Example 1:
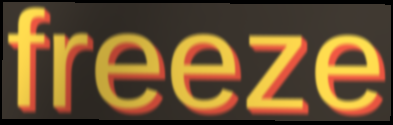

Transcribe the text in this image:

freeze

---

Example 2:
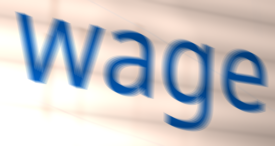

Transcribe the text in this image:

wage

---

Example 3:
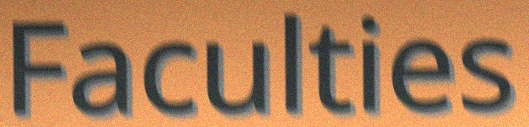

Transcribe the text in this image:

Faculties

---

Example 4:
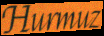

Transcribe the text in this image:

Hurmuz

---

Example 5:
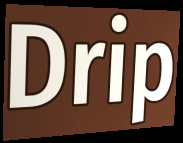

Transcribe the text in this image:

Drip